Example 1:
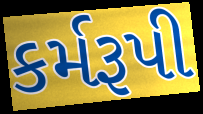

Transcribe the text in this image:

કર્મરૂપી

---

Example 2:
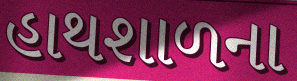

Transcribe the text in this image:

હાથશાળના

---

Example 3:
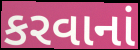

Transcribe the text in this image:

કરવાનાં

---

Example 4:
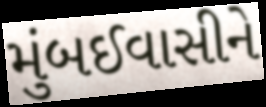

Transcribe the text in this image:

મુંબઈવાસીને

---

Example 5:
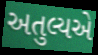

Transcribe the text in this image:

અતુલ્યએ